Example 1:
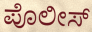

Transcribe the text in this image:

ಪೊಲೀಸ್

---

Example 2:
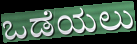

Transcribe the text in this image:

ಒಡೆಯಲು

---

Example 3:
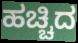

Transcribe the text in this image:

ಹಚ್ಚಿದ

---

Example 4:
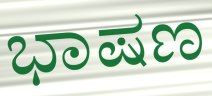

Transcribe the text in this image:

ಭಾಷಣ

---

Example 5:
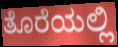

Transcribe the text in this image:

ತೊರೆಯಲ್ಲಿ